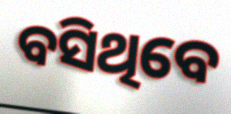
ବସିଥିବେ